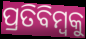
ପ୍ରତିବିମ୍ବକୁ